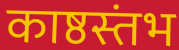
काष्ठस्तंभ